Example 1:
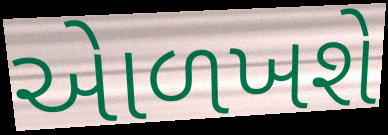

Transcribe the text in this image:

એાળખશે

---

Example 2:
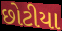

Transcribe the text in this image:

છોટીયા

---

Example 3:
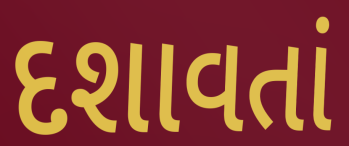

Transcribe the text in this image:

દશાવતાં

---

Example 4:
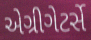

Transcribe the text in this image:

એગ્રીગેટર્સે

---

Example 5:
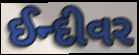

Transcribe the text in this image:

ઈન્દીવર